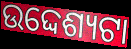
ଉଦ୍ଦେଶ୍ୟଟା